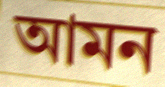
আমন